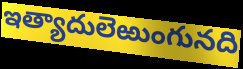
ఇత్యాదులెఱుంగునది